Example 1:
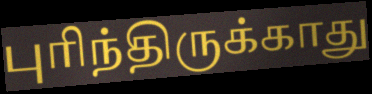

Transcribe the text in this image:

புரிந்திருக்காது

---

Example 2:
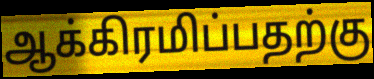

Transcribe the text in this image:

ஆக்கிரமிப்பதற்கு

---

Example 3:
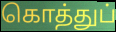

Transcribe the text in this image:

கொத்துப்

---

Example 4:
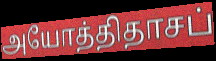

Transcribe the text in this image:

அயோத்திதாசப்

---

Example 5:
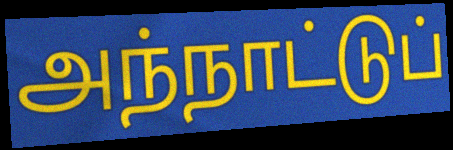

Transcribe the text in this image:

அந்நாட்டுப்